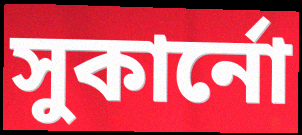
সুকার্নো